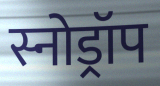
स्नोड्रॉप